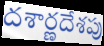
దశార్ణదేశపు